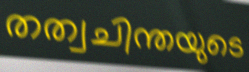
തത്വചിന്തയുടെ